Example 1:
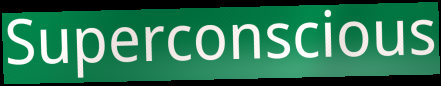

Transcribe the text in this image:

Superconscious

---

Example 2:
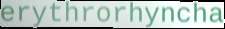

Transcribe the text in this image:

erythrorhyncha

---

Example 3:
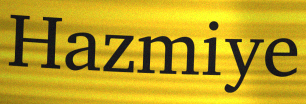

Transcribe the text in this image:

Hazmiye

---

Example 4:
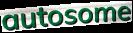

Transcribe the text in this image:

autosome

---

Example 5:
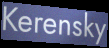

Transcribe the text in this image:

Kerensky